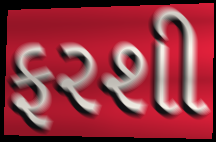
ફરશી